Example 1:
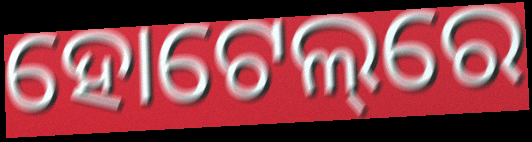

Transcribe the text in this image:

ହୋଟେଲ୍‌ରେ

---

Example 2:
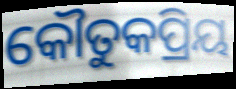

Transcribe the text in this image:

କୌତୁକପ୍ରିୟ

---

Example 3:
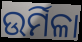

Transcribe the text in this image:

ଉର୍ମିଳା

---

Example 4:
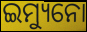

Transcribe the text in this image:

ଇମ୍ୟୁନୋ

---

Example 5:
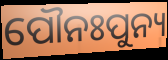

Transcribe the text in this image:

ପୌନଃପୁନ୍ୟ